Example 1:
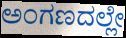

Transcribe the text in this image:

ಅಂಗಣದಲ್ಲೇ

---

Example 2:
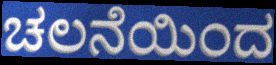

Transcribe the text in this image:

ಚಲನೆಯಿಂದ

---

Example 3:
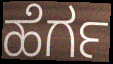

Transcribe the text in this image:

ಹೆರ್ಗ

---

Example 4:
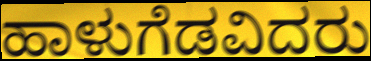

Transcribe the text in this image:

ಹಾಳುಗೆಡವಿದರು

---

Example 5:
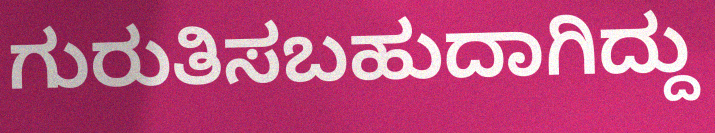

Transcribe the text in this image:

ಗುರುತಿಸಬಹುದಾಗಿದ್ದು